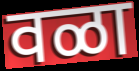
वळा